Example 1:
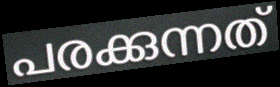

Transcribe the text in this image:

പരക്കുന്നത്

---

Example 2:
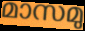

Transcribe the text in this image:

മാസമു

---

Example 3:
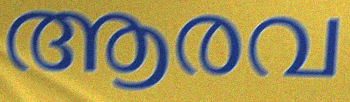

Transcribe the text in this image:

ആരവ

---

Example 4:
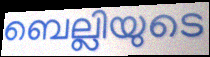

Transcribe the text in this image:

ബെല്ലിയുടെ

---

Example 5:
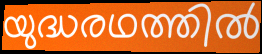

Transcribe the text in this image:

യുദ്ധരഥത്തിൽ